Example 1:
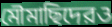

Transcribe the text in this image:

মৌমাছিদেরও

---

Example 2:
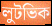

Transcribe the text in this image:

লুটভিক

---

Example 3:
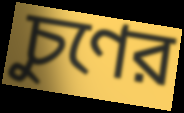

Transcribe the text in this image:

চুণের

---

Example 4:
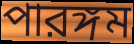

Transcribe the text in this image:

পারঙ্গম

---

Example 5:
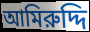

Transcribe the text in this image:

আমিরুদ্দি